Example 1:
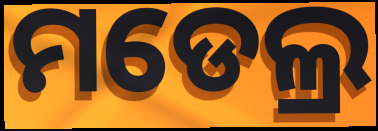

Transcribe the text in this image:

ମଡେଲ୍ର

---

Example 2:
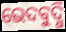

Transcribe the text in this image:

ଭେଦବୁଦ୍ଧି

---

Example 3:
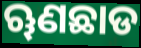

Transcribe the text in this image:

ୠଣଛାଡ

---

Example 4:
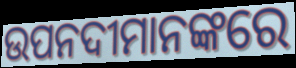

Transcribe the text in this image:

ଉପନଦୀମାନଙ୍କରେ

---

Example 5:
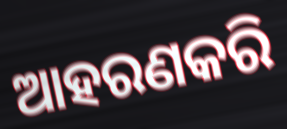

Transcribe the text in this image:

ଆହରଣକରି